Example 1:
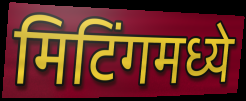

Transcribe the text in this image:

मिटिंगमध्ये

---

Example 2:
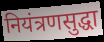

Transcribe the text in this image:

नियंत्रणसुद्धा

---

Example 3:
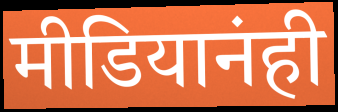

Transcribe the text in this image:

मीडियानंही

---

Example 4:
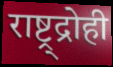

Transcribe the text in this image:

राष्ट्र्द्रोही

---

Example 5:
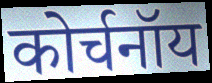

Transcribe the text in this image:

कोर्चनॉय